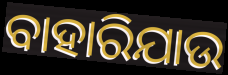
ବାହାରିଯାଉ